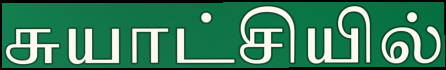
சுயாட்சியில்